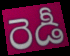
రెడీ